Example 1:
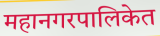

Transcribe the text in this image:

महानगरपालिकेत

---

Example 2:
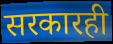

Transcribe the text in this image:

सरकारही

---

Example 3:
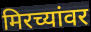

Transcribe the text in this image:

मिरच्यांवर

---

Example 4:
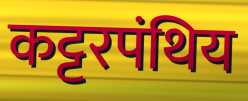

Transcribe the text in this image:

कट्टरपंथिय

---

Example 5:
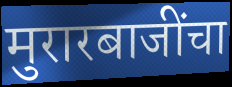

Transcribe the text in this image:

मुरारबाजींचा